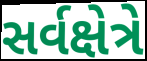
સર્વક્ષેત્રે